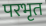
परभृत